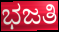
ಭಜತಿ